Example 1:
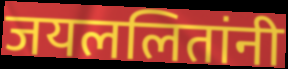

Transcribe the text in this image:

जयललितांनी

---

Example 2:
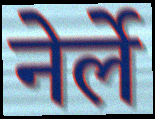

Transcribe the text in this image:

नेर्ले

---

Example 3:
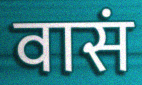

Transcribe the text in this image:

वासं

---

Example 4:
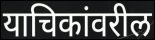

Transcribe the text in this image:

याचिकांवरील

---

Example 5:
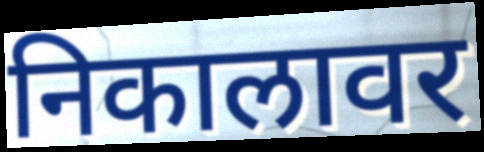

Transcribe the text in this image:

निकालावर